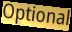
Optional